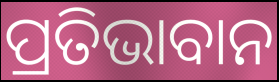
ପ୍ରତିଭାବାନ